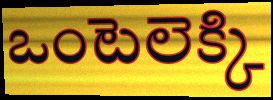
ఒంటెలెక్కి